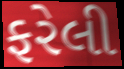
ફરેલી